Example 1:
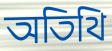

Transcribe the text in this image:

অতিথি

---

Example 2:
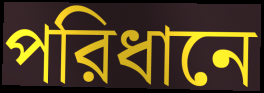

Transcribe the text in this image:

পরিধানে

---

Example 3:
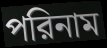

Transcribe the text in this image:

পরিনাম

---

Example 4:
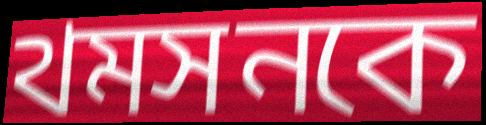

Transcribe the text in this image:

থমসনকে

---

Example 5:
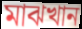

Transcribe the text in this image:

মাঝখান